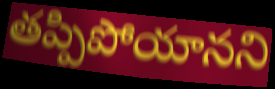
తప్పిపోయానని